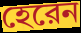
হেরেন